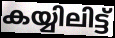
കയ്യിലിട്ട്